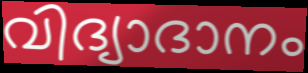
വിദ്യാദാനം